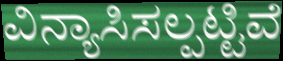
ವಿನ್ಯಾಸಿಸಲ್ಪಟ್ಟಿವೆ